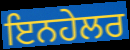
ਇਨਹੇਲਰ